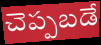
చెప్పబడే